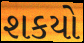
શકયો